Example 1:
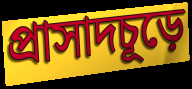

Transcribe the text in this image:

প্রাসাদচূড়ে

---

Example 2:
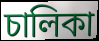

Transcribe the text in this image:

চালিকা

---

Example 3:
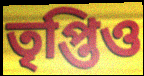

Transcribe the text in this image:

তৃপ্তিও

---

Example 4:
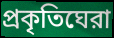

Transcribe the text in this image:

প্রকৃতিঘেরা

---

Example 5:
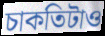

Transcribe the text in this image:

চাকতিটাও